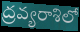
ద్రవ్యరాశిలో